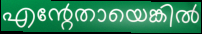
എന്റേതായെങ്കിൽ